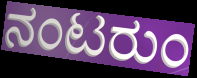
ನಂಟರುಂ